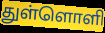
துள்ளொளி